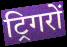
ट्रिगरों